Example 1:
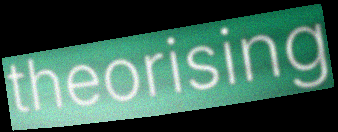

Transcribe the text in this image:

theorising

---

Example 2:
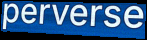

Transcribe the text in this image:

perverse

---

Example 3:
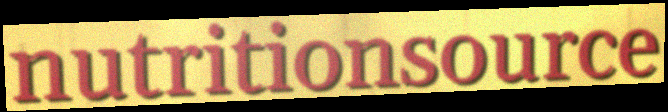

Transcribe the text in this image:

nutritionsource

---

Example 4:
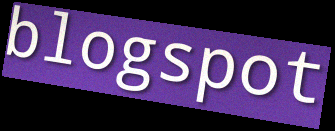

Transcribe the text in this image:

blogspot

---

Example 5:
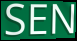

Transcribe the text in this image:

SEN